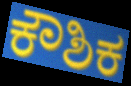
ಕೌಶಿಕ